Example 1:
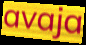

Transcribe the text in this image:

avaja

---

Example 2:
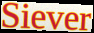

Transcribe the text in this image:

Siever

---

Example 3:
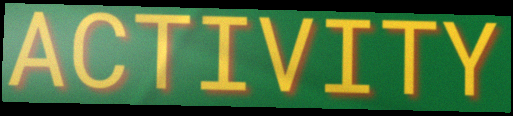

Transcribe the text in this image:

ACTIVITY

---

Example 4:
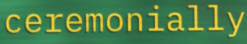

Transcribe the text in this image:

ceremonially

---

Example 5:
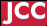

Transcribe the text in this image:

JCC